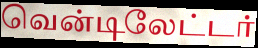
வென்டிலேட்டர்